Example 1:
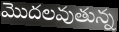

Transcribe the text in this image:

మొదలవుతున్న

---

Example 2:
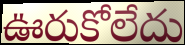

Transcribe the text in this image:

ఊరుకోలేదు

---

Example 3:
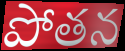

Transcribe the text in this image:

పోతన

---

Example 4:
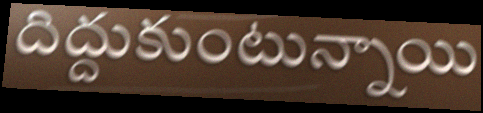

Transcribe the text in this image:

దిద్దుకుంటున్నాయి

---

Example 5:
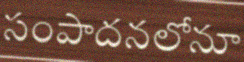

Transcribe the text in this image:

సంపాదనలోనూ